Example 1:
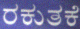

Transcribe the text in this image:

ರಕುತಕೆ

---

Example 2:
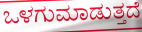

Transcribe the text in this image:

ಒಳಗುಮಾಡುತ್ತದೆ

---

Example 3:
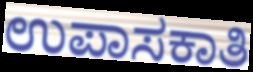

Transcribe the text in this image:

ಉಪಾಸಕಾತಿ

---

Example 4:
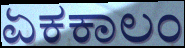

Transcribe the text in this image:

ಏಕಕಾಲಂ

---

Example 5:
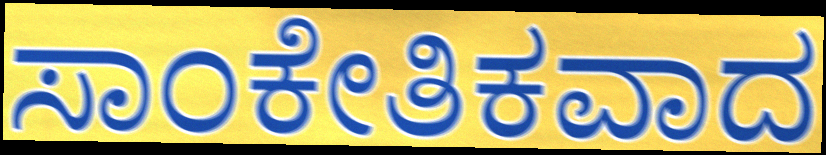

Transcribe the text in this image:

ಸಾಂಕೇತಿಕವಾದ